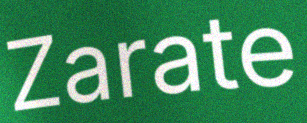
Zarate